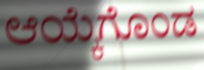
ಆಯ್ಕೆಗೊಂಡ